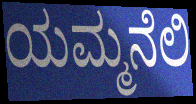
ಯಮ್ಮನೆಲಿ